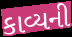
કાવ્યની